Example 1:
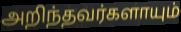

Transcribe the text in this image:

அறிந்தவர்களாயும்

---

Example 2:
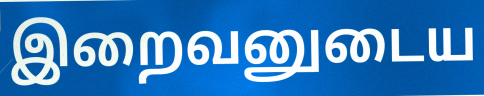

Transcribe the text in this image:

இறைவனுடைய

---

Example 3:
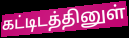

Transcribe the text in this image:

கட்டிடத்தினுள்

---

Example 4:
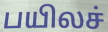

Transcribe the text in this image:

பயிலச்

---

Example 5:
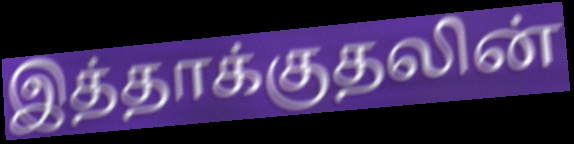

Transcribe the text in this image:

இத்தாக்குதலின்